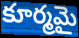
కూర్మమై